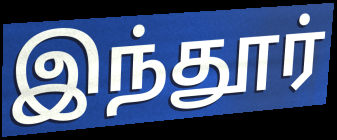
இந்தூர்